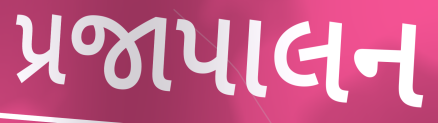
પ્રજાપાલન